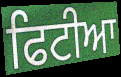
ਫਿਟੀਆ